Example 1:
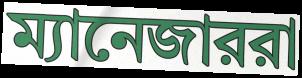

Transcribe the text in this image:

ম্যানেজাররা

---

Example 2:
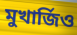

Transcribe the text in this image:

মুখার্জিও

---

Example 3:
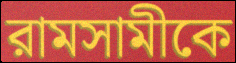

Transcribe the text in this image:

রামসামীকে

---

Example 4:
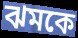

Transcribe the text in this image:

ঝমকে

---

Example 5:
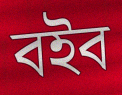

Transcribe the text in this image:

বইব